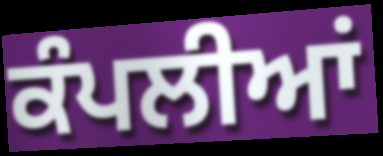
ਕੰਪਲੀਆਂ